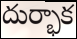
దుర్భాక